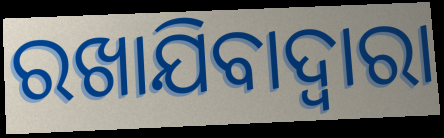
ରଖାଯିବାଦ୍ଵାରା